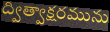
ద్విత్వాక్షరమును